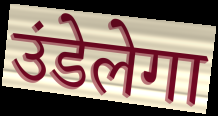
उंडेलेगा